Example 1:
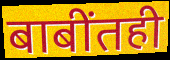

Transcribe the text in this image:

बाबींतही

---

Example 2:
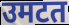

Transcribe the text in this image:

उमटत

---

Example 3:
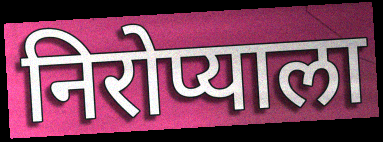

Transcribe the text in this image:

निरोप्याला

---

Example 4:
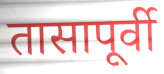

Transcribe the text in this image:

तासापूर्वी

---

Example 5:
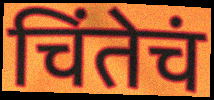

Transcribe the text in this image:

चिंतेचं